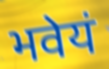
भवेयं